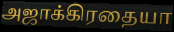
அஜாக்கிரதையா